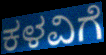
ಕಳವಿಗೆ